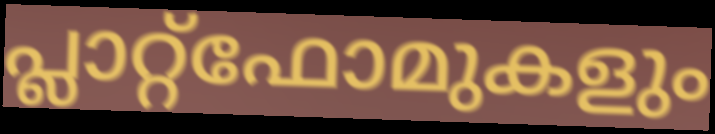
പ്ലാറ്റ്ഫോമുകളും